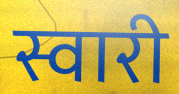
स्वारी